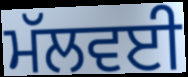
ਮੱਲਵਈ